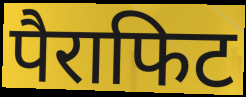
पैराफिट